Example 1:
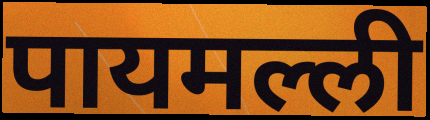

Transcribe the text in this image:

पायमल्ली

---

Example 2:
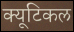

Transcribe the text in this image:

क्यूटिकल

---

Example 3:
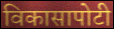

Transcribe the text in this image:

विकासापोटी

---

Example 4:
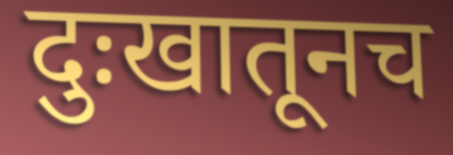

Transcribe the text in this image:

दुःखातूनच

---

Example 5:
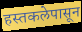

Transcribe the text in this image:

हस्तकलेपासून